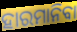
ହାରମାନିବା